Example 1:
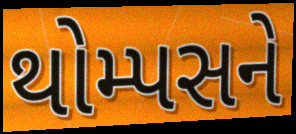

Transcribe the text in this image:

થોમ્પસને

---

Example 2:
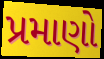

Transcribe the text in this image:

પ્રમાણો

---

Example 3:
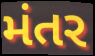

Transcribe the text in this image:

મંતર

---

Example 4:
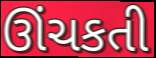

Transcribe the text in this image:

ઊંચકતી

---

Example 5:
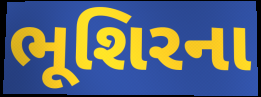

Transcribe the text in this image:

ભૂશિરના